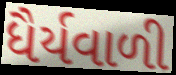
ધૈર્યવાળી